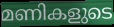
മണികളുടെ